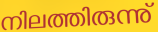
നിലത്തിരുന്നു്